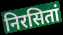
निरसितां